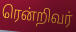
ரென்றிவர்